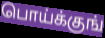
பொய்க்குங்